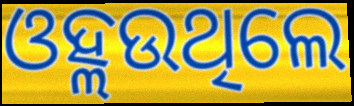
ଓହ୍ଲଉଥିଲେ